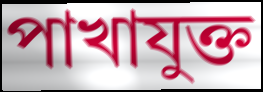
পাখাযুক্ত